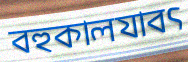
বহুকালযাবৎ